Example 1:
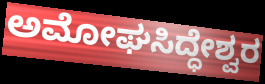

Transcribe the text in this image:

ಅಮೋಘಸಿದ್ಧೇಶ್ವರ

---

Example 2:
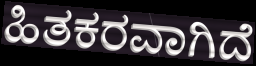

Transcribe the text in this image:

ಹಿತಕರವಾಗಿದೆ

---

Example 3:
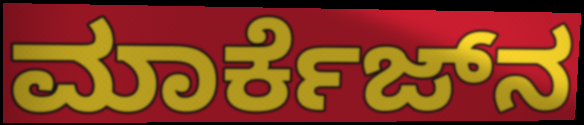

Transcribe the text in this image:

ಮಾರ್ಕೆಜ್‌ನ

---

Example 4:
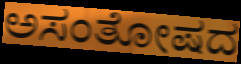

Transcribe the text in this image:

ಅಸಂತೋಷದ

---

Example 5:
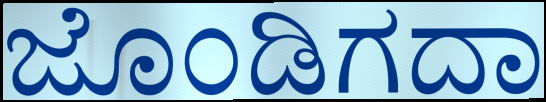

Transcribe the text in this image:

ಜೊಂಡಿಗದಾ